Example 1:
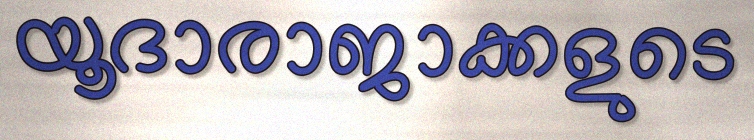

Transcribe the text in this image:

യൂദാരാജാക്കളുടെ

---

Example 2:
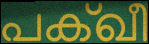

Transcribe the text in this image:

പക്ഖീ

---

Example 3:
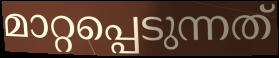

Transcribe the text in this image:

മാറ്റപ്പെടുന്നത്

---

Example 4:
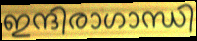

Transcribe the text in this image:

ഇന്ദിരാഗാന്ധി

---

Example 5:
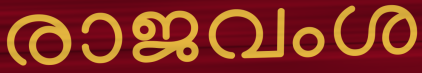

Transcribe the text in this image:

രാജവംശ